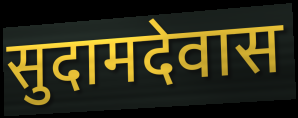
सुदामदेवास